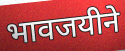
भावजयीने